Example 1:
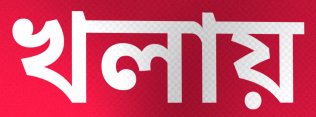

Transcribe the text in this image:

খলায়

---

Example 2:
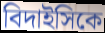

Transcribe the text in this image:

বিদাইসিকে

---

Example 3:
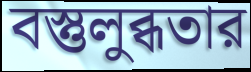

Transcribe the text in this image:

বস্তুলুব্ধতার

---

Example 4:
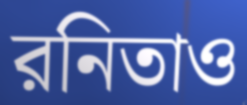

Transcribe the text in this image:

রনিতাও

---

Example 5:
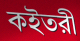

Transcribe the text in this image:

কইতরী